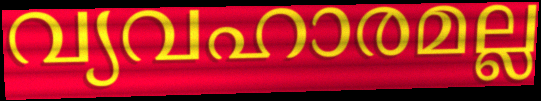
വ്യവഹാരമല്ല